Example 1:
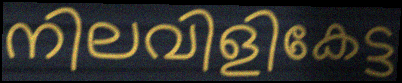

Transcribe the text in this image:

നിലവിളികേട്ട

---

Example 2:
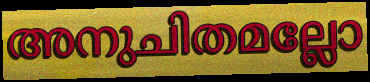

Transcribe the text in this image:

അനുചിതമല്ലോ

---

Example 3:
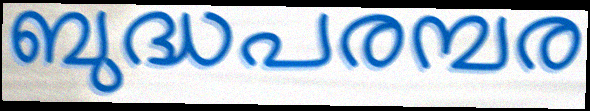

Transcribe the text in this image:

ബുദ്ധപരമ്പര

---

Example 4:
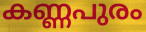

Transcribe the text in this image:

കണ്ണപുരം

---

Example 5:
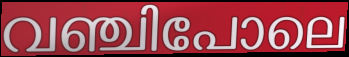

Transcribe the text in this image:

വഞ്ചിപോലെ